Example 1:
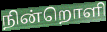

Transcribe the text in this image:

நின்றொளி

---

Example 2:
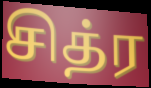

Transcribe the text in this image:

சித்ர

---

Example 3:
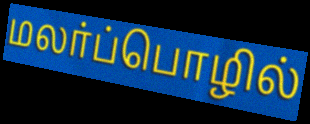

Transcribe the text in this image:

மலர்ப்பொழில்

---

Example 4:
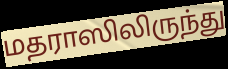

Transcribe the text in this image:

மதராஸிலிருந்து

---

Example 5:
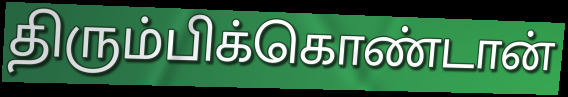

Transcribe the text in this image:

திரும்பிக்கொண்டான்